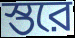
স্তরে